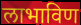
लाभाविण